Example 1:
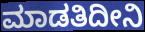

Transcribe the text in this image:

ಮಾಡತಿದೀನಿ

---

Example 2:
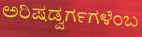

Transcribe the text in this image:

ಅರಿಷಡ್ವರ್ಗಗಳೆಂಬ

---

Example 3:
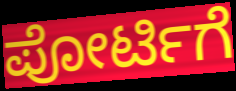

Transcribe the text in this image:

ಪೋರ್ಟಿಗೆ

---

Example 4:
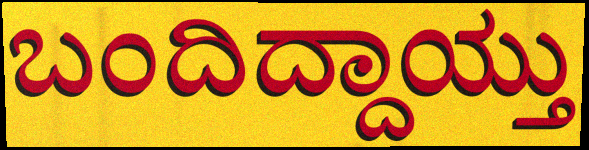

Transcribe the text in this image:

ಬಂದಿದ್ದಾಯ್ತು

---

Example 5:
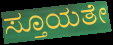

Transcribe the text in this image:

ಸ್ತೂಯತೇ